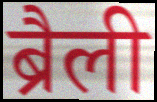
ब्रैली